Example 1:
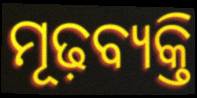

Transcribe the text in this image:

ମୂଢ଼ବ୍ୟକ୍ତି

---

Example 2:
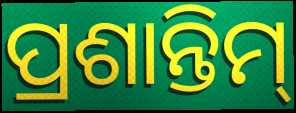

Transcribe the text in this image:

ପ୍ରଶାନ୍ତିମ୍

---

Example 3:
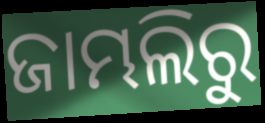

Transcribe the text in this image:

ଜାମ୍ଭଲିରୁ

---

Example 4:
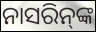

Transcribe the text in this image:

ନାସରିନ୍‌ଙ୍କ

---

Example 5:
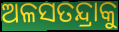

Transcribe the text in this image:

ଅଳସତନ୍ଦ୍ରାକୁ